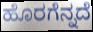
ಹೊರಗೆನ್ನದೆ